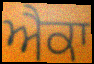
ਐਕਾ